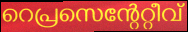
റെപ്രസെന്റേറ്റീവ്